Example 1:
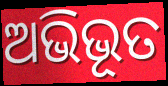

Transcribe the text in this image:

ଅଭିଭୂତ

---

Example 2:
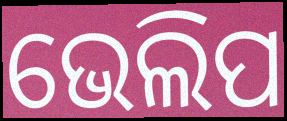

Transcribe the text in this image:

ଭେଲିପ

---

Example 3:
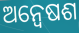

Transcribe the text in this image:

ଅନ୍ୱେଷଶ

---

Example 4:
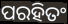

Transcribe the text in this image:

ପରହିତଂ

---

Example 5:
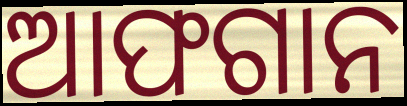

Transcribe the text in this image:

ଆଫଗାନ